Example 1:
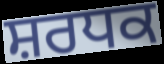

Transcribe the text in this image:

ਸ਼ਰਧਕ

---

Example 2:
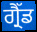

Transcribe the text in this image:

ਗ੍ਰੈੱਡ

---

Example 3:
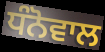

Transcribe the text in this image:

ਧੰਨੋਵਾਲ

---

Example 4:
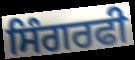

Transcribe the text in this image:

ਸਿੰਗਰਫੀ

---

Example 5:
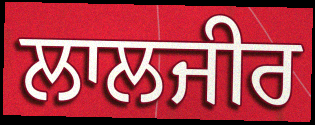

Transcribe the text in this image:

ਲਾਲਜੀਰ